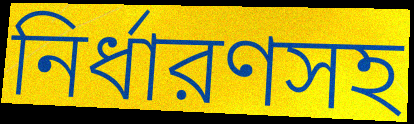
নির্ধারণসহ